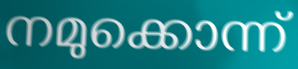
നമുക്കൊന്ന്